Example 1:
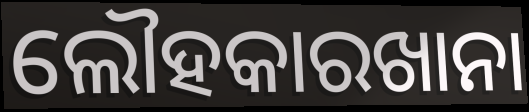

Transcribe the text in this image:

ଲୌହକାରଖାନା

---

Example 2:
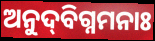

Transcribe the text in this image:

ଅନୁଦ୍‌ବିଗ୍ନମନାଃ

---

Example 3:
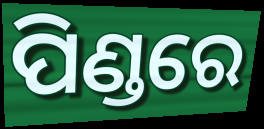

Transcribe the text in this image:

ପିଣ୍ଡରେ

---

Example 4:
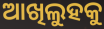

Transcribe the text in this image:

ଆଖିଲୁହକୁ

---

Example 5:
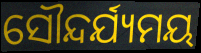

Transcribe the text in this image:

ସୌନ୍ଦର୍ଯ୍ୟମୟ